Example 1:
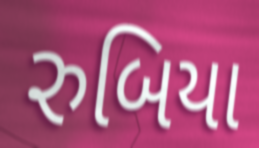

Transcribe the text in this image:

રુબિયા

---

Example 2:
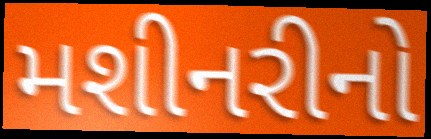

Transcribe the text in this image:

મશીનરીનો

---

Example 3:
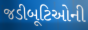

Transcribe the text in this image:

જડીબૂટિઓની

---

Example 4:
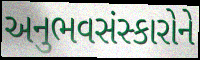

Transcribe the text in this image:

અનુભવસંસ્કારોને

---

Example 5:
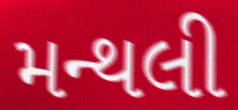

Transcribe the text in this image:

મન્થલી